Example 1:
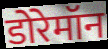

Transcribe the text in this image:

डोरेमॉन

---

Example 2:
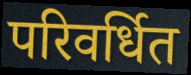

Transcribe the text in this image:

परिवर्धित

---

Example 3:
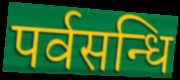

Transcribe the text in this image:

पर्वसन्धि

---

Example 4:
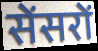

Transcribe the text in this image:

सेंसरों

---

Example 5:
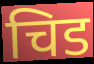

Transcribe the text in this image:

चिड